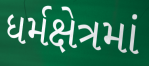
ધર્મક્ષેત્રમાં